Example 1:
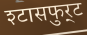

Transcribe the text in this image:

श्टासफुर्ट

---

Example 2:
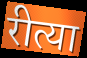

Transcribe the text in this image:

रीत्या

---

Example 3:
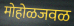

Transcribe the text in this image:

मोहोळजवळ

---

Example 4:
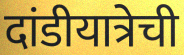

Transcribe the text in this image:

दांडीयात्रेची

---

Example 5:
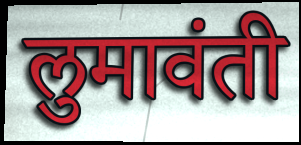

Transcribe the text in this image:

लुमावंती